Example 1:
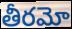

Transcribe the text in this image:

తీరమో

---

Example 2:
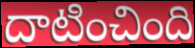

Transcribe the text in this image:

దాటించింది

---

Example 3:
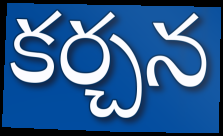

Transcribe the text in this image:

కర్చన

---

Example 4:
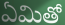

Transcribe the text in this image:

ఏమితో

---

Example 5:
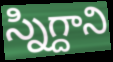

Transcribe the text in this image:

స్నిగ్దాని